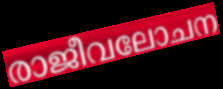
രാജീവലോചന